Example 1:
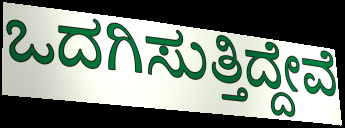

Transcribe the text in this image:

ಒದಗಿಸುತ್ತಿದ್ದೇವೆ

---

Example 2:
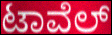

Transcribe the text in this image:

ಟಾವೆಲ್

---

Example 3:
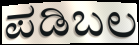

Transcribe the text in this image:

ಪಡಿಬಲ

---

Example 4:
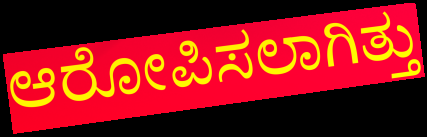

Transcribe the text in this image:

ಆರೋಪಿಸಲಾಗಿತ್ತು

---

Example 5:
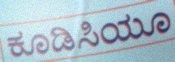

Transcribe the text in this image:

ಕೂಡಿಸಿಯೂ